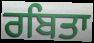
ਰਬਿਤਾ